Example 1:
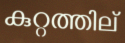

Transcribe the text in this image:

കുറ്റത്തില്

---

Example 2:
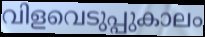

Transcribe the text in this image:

വിളവെടുപ്പുകാലം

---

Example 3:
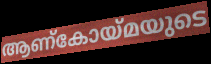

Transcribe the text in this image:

ആണ്കോയ്മയുടെ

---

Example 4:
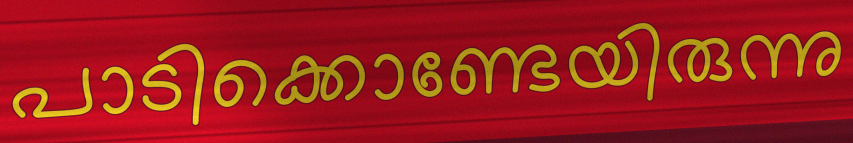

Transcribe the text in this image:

പാടിക്കൊണ്ടേയിരുന്നു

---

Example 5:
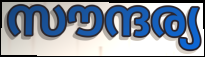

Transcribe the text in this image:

സൗന്ദര്യ